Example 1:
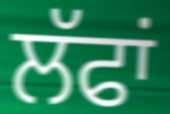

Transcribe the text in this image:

ਲੱਫਾਂ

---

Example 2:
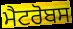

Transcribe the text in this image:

ਮੈਟਰੋਬਸ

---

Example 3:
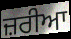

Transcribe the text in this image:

ਜ਼ਰੀਆ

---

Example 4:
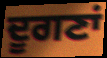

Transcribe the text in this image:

ਦੂਗਣਾਂ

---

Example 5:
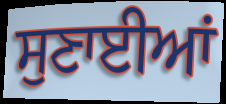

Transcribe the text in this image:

ਸੁਣਾਈਆਂ